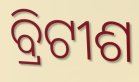
ବ୍ରିଟୀଶ